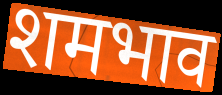
शमभाव